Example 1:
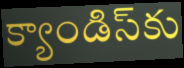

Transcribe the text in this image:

క్యాండిస్‌కు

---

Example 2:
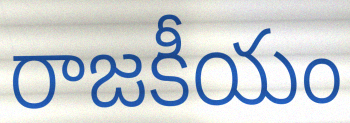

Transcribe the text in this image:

రాజకీయం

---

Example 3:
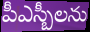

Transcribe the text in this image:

పీఎస్బీలను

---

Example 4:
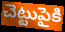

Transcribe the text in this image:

చెట్టుపైకి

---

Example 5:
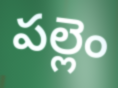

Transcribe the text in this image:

పల్లెం